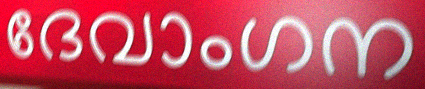
ദേവാംഗന